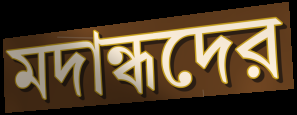
মদান্ধদের